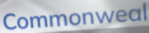
Commonweal